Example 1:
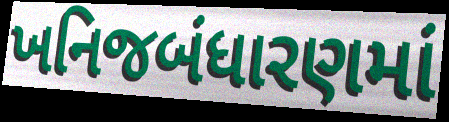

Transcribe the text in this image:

ખનિજબંધારણમાં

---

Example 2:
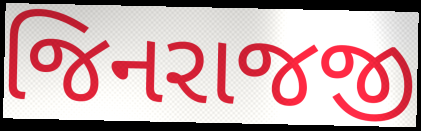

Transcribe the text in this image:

જિનરાજજી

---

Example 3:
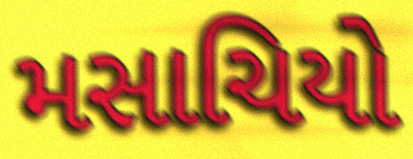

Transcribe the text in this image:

મસાચિયો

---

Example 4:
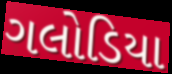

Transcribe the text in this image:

ગલોડિયા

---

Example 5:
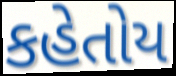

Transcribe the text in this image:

કહેતોય